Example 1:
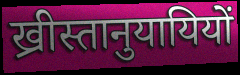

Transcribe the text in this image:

ख्रीस्तानुयायियों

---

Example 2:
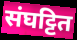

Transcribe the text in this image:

संघट्टित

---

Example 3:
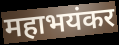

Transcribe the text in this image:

महाभयंकर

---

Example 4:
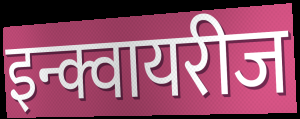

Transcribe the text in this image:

इन्क्वायरीज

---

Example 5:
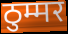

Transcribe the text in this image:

ठुम्मर